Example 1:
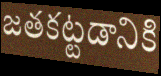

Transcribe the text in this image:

జతకట్టడానికి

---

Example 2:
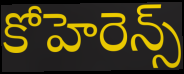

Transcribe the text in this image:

కోహెరెన్స్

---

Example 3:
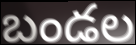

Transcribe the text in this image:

బండల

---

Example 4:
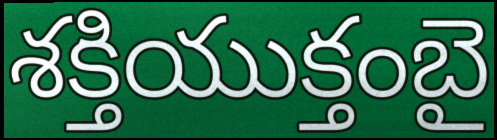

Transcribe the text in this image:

శక్తియుక్తంబై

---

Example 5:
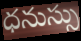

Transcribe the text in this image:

ధనుస్సు